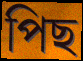
পিছ